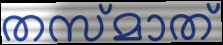
തസ്മാത്